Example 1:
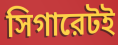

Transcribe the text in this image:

সিগারেটই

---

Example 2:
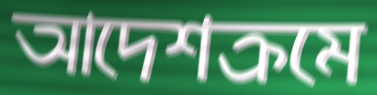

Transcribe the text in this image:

আদেশক্রমে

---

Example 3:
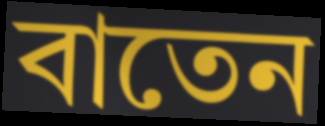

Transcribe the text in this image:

বাতেন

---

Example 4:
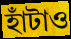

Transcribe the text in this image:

হাঁটাও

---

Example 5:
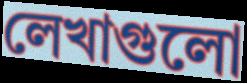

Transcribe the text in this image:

লেখাগুলো